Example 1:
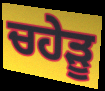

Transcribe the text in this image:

ਚਹੇਡ਼ੂ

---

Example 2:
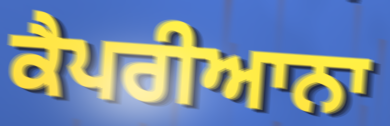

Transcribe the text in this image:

ਕੈਪਰੀਆਨਾ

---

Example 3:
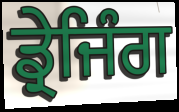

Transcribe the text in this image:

ਡ੍ਰੇਜਿੰਗ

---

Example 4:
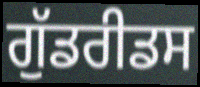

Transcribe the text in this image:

ਗੁੱਡਰੀਡਸ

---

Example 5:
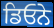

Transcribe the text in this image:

ਡਿਓਨੇ